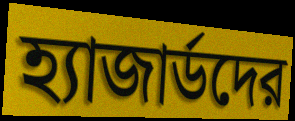
হ্যাজার্ডদের